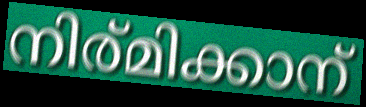
നിര്മിക്കാന്